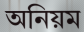
অনিয়ম